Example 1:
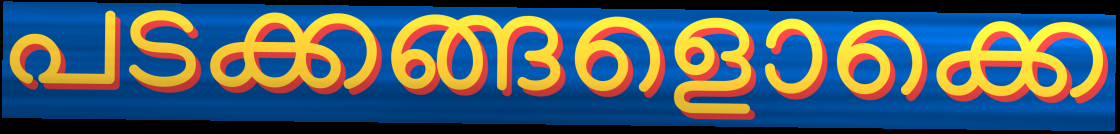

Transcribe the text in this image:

പടക്കങ്ങളൊക്കെ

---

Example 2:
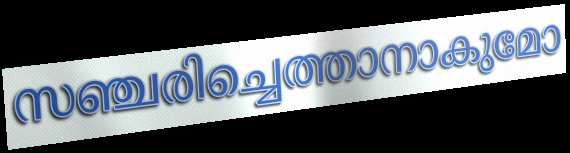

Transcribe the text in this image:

സഞ്ചരിച്ചെത്താനാകുമോ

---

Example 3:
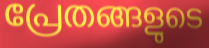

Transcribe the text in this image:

പ്രേതങ്ങളുടെ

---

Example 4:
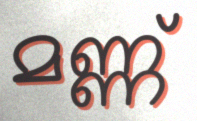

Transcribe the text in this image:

മണ്ണ്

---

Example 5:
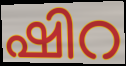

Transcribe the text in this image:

ഷിറ